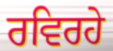
ਰਵਿਰਹੇ